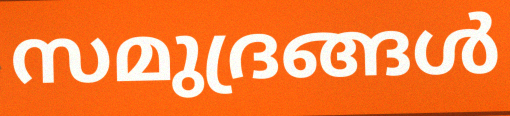
സമുദ്രങ്ങൾ